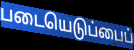
படையெடுப்பைப்